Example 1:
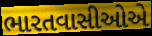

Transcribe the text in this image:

ભારતવાસીઓએ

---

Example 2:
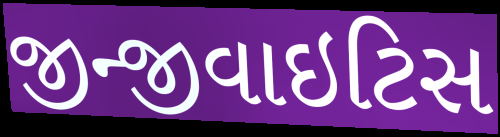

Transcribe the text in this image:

જીન્જીવાઇટિસ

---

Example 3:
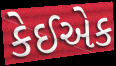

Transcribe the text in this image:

કેઈએક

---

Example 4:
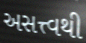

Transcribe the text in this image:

અસત્ત્વથી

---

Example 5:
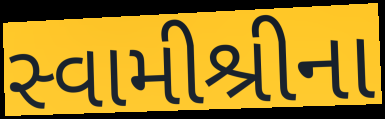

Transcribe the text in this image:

સ્વામીશ્રીના